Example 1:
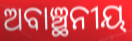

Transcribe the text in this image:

ଅବାଞ୍ଛନୀୟ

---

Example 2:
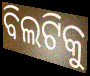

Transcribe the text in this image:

ବିଲଟିକୁ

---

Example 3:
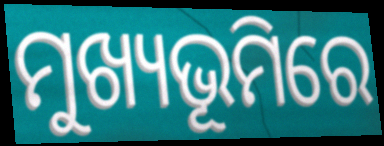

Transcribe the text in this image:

ମୁଖ୍ୟଭୂମିରେ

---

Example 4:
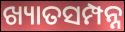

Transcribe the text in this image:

ଖ୍ୟାତସମ୍ପନ୍ନ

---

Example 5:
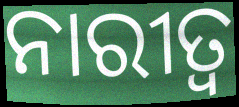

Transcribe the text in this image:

ନାରୀତ୍ୱ